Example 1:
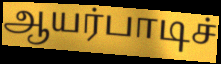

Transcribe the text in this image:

ஆயர்பாடிச்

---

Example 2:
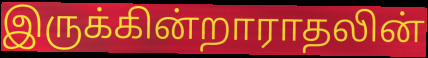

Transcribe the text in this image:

இருக்கின்றாராதலின்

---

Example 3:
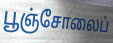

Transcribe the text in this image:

பூஞ்சோலைப்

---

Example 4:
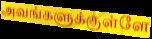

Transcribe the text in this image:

அவங்களுக்குள்ளே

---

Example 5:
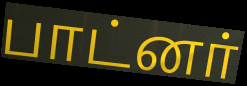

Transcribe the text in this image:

பாட்னர்